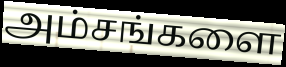
அம்சங்களை